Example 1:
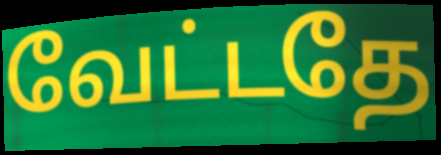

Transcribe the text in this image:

வேட்டதே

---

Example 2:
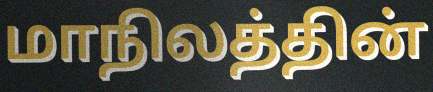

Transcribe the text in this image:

மாநிலத்தின்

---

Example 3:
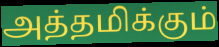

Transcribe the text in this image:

அத்தமிக்கும்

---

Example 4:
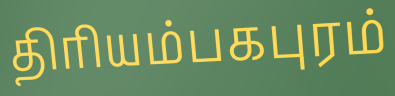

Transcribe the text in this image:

திரியம்பகபுரம்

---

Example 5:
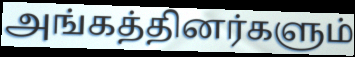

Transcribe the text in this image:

அங்கத்தினர்களும்